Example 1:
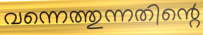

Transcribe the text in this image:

വന്നെത്തുന്നതിന്റെ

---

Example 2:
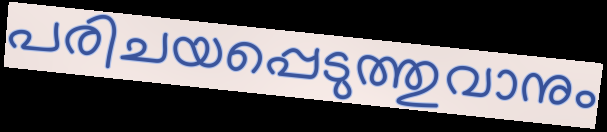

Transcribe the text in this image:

പരിചയപ്പെടുത്തുവാനും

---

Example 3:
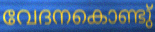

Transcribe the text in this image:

വേദനകൊണ്ടു്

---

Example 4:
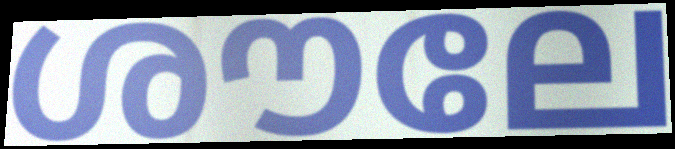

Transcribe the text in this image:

ശൗലേ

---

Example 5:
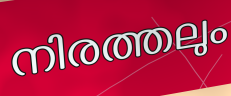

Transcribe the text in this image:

നിരത്തലും